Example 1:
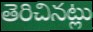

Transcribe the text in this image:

తెరిచినట్లు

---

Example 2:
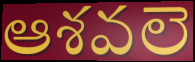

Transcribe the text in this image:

ఆశవలె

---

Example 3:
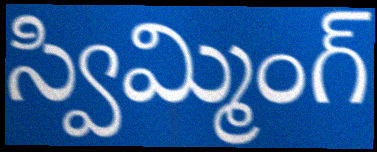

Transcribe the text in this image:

స్విమ్మింగ్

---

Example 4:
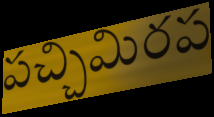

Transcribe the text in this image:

పచ్చిమిరప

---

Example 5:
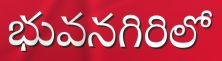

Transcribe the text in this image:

భువనగిరిలో